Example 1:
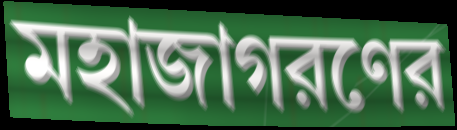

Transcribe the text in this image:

মহাজাগরণের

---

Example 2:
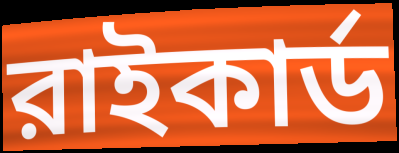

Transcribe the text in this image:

রাইকার্ড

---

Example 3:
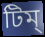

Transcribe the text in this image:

টিম্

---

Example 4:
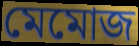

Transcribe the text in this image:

মেমোজ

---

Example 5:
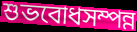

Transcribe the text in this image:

শুভবোধসম্পন্ন